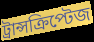
ট্রান্সক্রিপ্টেজ